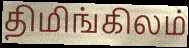
திமிங்கிலம்